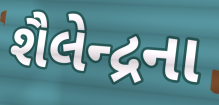
શૈલેન્દ્રના